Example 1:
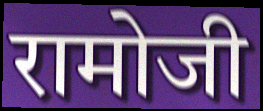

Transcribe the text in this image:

रामोजी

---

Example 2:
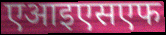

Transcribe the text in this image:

एआइएसएफ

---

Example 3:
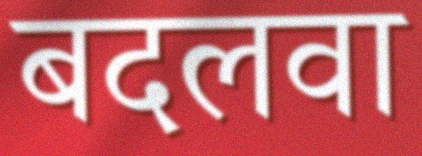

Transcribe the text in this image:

बदलवा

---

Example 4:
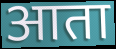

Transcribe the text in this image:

आता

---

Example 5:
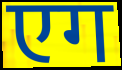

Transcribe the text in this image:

एग